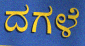
ದಗಳೆ